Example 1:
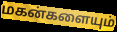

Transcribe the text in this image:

மகன்களையும்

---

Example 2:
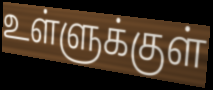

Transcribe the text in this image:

உள்ளுக்குள்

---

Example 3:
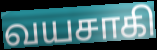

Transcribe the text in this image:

வயசாகி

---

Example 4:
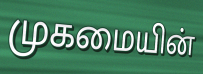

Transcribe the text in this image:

முகமையின்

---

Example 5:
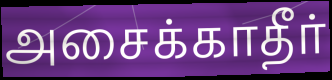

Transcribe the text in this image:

அசைக்காதீர்